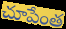
చూపేంత